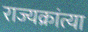
राज्यक्रांत्या